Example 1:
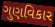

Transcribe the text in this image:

ગુણવિકાર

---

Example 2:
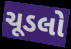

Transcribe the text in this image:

ચૂડલો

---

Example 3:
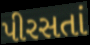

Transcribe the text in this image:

પીરસતાં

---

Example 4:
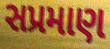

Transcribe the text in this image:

સપ્રમાણ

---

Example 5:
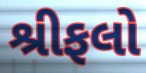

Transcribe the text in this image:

શ્રીફલો